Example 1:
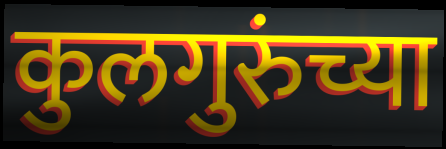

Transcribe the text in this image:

कुलगुरुंच्या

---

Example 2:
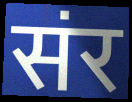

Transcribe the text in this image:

संर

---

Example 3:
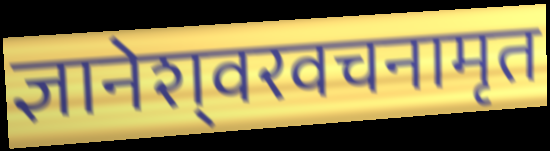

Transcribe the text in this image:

ज्ञानेश्वरवचनामृत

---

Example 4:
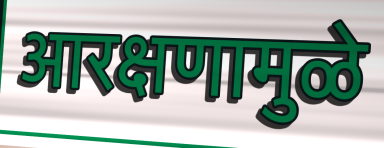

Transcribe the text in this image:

आरक्षणामुळे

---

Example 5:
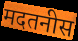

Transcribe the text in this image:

मदतनीस